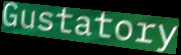
Gustatory